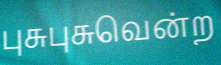
புசுபுசுவென்ற